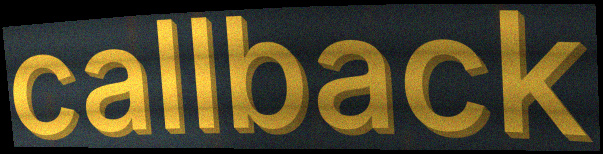
callback